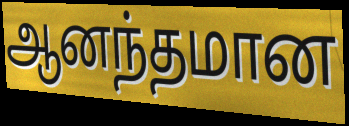
ஆனந்தமான